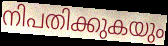
നിപതിക്കുകയും